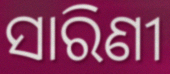
ସାରିଣୀ